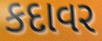
કદાવર